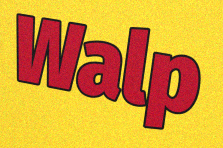
Walp